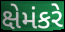
ક્ષેમંકરે